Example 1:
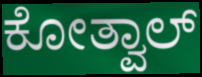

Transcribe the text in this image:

ಕೋತ್ವಾಲ್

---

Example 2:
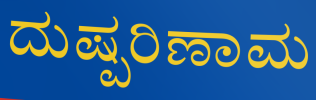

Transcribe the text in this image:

ದುಷ್ಪರಿಣಾಮ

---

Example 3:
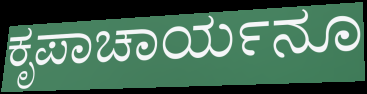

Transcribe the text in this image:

ಕೃಪಾಚಾರ್ಯನೂ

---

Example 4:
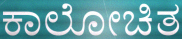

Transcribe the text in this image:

ಕಾಲೋಚಿತ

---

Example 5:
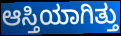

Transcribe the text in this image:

ಆಸ್ತಿಯಾಗಿತ್ತು